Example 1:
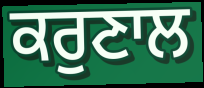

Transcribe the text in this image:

ਕਰੁਣਾਲ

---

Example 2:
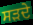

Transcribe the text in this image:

ਸੜਦੇ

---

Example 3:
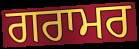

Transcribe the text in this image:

ਗਰਾਮਰ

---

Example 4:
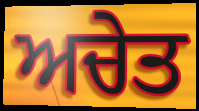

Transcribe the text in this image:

ਅਚੇਤ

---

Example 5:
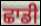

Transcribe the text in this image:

ਛਾਡੀ